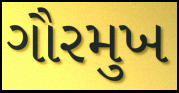
ગૌરમુખ